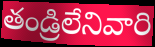
తండ్రిలేనివారి